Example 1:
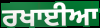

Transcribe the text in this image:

ਰਖਾਈਆ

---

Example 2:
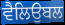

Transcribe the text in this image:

ਵੈਲਿਉਬਲ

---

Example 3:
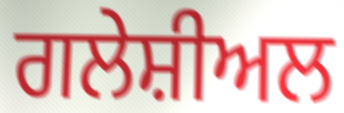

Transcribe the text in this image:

ਗਲੇਸ਼ੀਅਲ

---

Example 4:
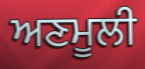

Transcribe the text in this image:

ਅਣਮੂਲੀ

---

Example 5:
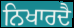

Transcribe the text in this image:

ਨਿਖਾਰਦੈ